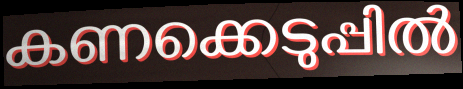
കണക്കെടുപ്പിൽ